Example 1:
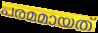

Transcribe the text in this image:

പരമമായത്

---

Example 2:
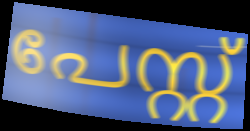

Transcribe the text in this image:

പേസ്റ്റ്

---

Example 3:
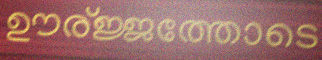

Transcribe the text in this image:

ഊര്ജ്ജത്തോടെ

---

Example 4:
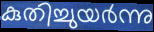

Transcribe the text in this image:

കുതിച്ചുയർന്നു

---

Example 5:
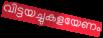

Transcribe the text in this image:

വിട്ടയച്ചുകളയേണം